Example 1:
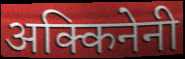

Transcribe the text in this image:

अक्किनेनी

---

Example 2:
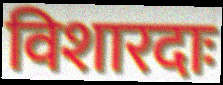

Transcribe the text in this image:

विशारदाः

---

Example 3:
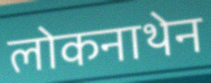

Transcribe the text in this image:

लोकनाथेन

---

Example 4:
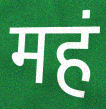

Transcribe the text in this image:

महं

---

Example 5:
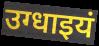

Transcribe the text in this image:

उग्धाइयं